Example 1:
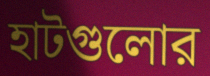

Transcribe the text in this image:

হাটগুলোর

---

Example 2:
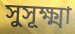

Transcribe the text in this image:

সুসূক্ষ্মা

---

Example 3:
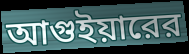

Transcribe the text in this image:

আগুইয়ারের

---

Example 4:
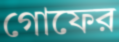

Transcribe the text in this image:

গোফের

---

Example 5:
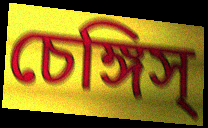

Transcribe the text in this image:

চেঙ্গিস্